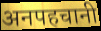
अनपहचानी